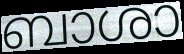
ബാശാ